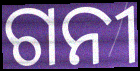
ଗନୀ